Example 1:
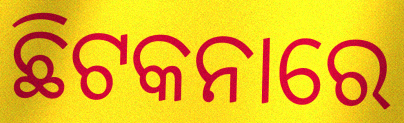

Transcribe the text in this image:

ଛିଟକନାରେ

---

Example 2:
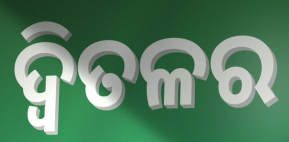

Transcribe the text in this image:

ଦ୍ୱିତଳର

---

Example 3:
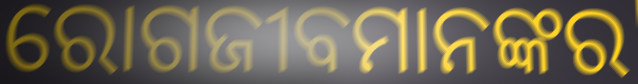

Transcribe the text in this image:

ରୋଗଜୀବମାନଙ୍କର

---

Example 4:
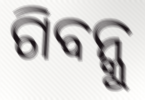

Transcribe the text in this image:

ଗିବନ୍କୁ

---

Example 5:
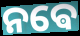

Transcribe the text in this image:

ନଵେ